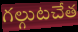
గల్గుటచేత